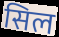
सिल